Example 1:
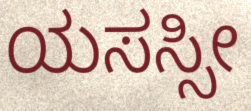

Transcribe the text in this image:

ಯಸಸ್ಸೀ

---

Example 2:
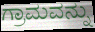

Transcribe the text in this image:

ಗ್ರಾಮವನ್ನು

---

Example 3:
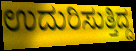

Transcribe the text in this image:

ಉದುರಿಸುತ್ತಿದ್ದ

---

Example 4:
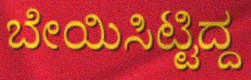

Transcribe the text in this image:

ಬೇಯಿಸಿಟ್ಟಿದ್ದ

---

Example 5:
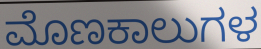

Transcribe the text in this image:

ಮೊಣಕಾಲುಗಳ